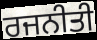
ਰਜਨੀਤੀ